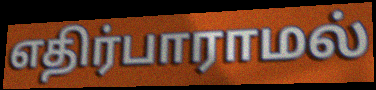
எதிர்பாராமல்